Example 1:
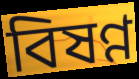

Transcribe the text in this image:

বিষণ্ন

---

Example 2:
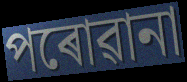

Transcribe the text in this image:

পৰোৱানা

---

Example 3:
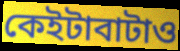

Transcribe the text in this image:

কেইটাবাটাও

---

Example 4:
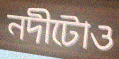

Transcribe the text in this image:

নদীটোও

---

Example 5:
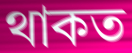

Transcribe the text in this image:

থাকত